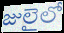
జులైలో